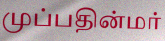
முப்பதின்மர்